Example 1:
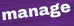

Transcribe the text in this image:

manage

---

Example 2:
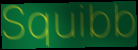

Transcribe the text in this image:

Squibb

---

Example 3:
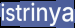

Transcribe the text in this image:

istrinya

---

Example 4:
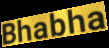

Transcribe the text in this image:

Bhabha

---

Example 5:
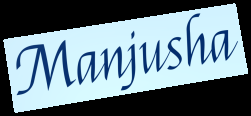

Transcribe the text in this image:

Manjusha